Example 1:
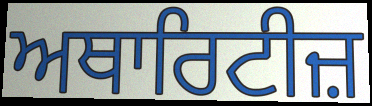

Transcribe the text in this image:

ਅਥਾਰਿਟੀਜ਼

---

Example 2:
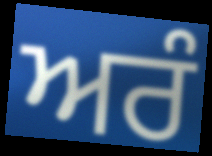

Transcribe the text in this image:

ਅਰੰ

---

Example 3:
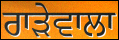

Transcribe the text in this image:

ਰਾੜੇਵਾਲਾ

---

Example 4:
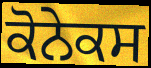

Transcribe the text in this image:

ਕੋਨੇਕਸ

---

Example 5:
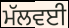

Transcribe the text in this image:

ਮੱਲਵਈ